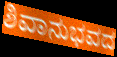
ಶಿವಾನುಭವದ